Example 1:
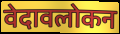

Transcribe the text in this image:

वेदावलोकन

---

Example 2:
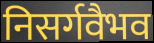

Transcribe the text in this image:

निसर्गवैभव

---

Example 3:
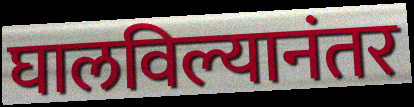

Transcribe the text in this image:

घालविल्यानंतर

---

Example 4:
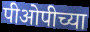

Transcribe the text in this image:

पीओपीच्या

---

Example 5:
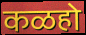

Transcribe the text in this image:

कळहो